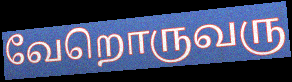
வேறொருவரு